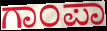
ಗಾಂಪಾ